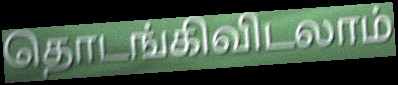
தொடங்கிவிடலாம்